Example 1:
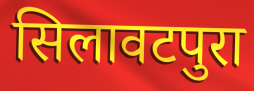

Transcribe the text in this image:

सिलावटपुरा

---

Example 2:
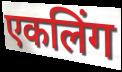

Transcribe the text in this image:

एकलिंग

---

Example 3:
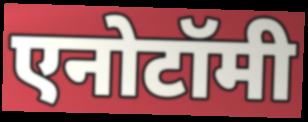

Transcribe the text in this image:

एनोटॉमी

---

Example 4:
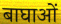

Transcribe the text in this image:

बाघाओं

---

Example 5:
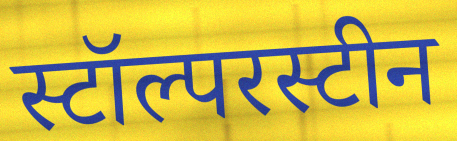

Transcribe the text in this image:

स्टॉल्परस्टीन